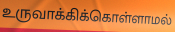
உருவாக்கிக்கொள்ளாமல்